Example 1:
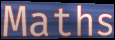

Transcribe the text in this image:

Maths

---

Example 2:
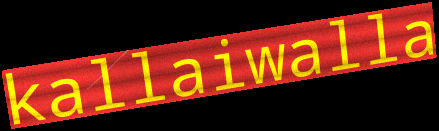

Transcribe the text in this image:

kallaiwalla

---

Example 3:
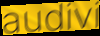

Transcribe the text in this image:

audivi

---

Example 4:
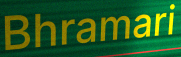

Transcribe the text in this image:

Bhramari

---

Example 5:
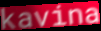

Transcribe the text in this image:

kavina